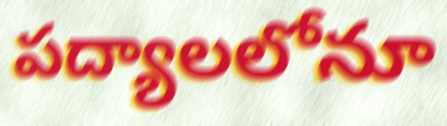
పద్యాలలోనూ